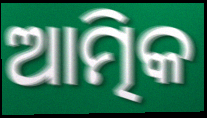
ଆତ୍ମିକ